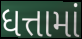
ધત્તામાં